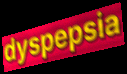
dyspepsia